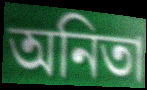
অনিতা